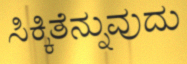
ಸಿಕ್ಕಿತೆನ್ನುವುದು